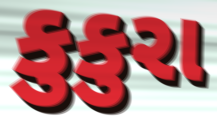
કુકુરા